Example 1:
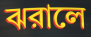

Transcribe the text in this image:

ঝরালে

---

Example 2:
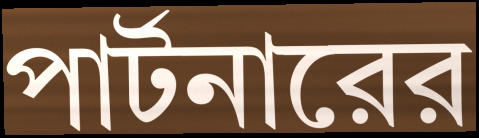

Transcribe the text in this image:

পার্টনারের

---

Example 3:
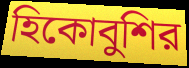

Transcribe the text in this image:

হিকোবুশির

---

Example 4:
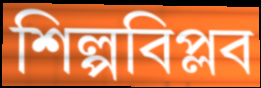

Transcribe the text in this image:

শিল্পবিপ্লব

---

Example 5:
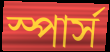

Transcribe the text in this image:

স্পার্স